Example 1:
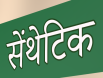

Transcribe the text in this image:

सेंथेटिक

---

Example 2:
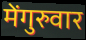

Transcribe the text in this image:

मेंगुरुवार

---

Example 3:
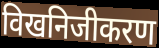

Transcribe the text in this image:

विखनिजीकरण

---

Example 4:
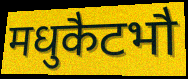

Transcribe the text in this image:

मधुकैटभौ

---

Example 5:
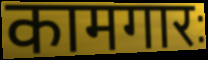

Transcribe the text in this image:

कामगारः